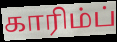
காரிம்ப்